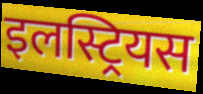
इलस्ट्रियस